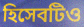
হিসেবটিও